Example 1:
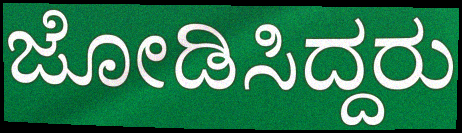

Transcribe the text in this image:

ಜೋಡಿಸಿದ್ದರು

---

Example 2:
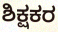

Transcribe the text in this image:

ಶಿಕ್ಷಕರ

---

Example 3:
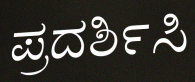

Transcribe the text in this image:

ಪ್ರದರ್ಶಿಸಿ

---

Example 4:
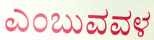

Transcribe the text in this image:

ಎಂಬುವವಳ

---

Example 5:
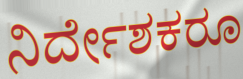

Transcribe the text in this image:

ನಿರ್ದೇಶಕರೂ